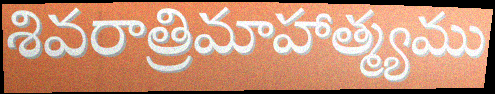
శివరాత్రిమాహాత్మ్యము